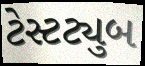
ટેસ્ટટ્યુબ